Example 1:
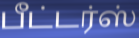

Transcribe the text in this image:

பீட்டர்ஸ்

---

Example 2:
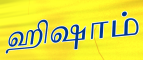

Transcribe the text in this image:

ஹிஷாம்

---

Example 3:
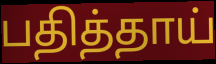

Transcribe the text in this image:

பதித்தாய்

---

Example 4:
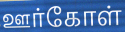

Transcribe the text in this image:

ஊர்கோள்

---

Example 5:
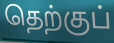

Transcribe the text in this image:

தெற்குப்